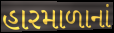
હારમાળાનાં